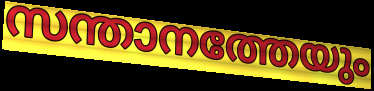
സന്താനത്തേയും